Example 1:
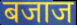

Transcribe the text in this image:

बजाज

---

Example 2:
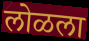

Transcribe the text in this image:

लोळला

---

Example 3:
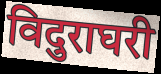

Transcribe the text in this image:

विदुराघरी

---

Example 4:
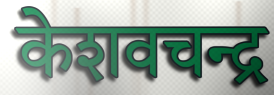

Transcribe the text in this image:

केशवचन्द्र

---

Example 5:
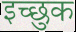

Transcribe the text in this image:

इच्छुक